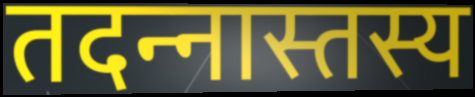
तदन्नास्तस्य